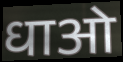
धाओ